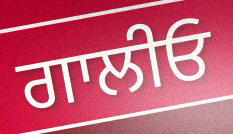
ਗਾਲੀਓ